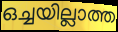
ഒച്ചയില്ലാത്ത